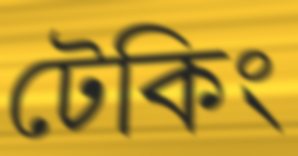
টেকিং